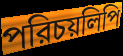
পরিচয়লিপি